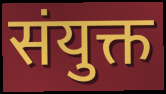
संयुक्त